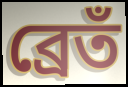
ব্রেতঁ